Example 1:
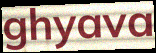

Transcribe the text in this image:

ghyava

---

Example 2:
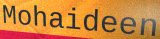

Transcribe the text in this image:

Mohaideen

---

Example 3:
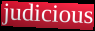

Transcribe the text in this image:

judicious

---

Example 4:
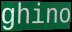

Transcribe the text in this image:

ghino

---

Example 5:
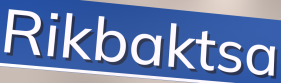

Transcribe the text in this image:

Rikbaktsa